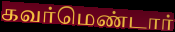
கவர்மெண்டார்